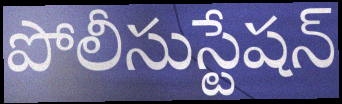
పోలీసుస్టేషన్